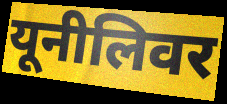
यूनीलिवर